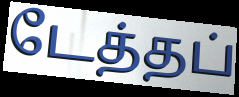
டேத்தப்